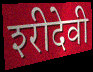
श्रीदेवी